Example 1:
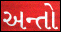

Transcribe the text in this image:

અન્તો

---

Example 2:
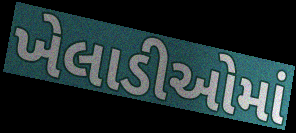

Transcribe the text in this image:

ખેલાડીઓમાં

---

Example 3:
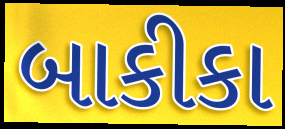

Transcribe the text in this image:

બાકીકા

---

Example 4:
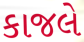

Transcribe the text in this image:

કાજલે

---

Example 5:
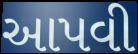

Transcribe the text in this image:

આપવી